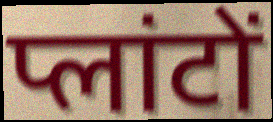
प्लांटों